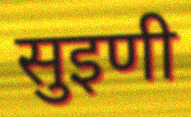
सुइणी